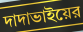
দাদাভাইয়ের